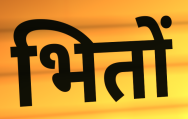
भितों